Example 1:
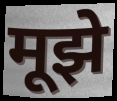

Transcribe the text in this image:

मूझे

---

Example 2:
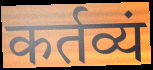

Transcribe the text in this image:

कर्तव्यं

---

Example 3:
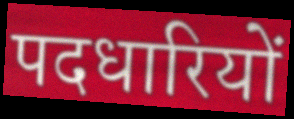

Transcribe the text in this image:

पदधारियों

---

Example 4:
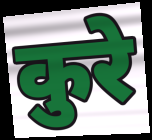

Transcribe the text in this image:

कुरे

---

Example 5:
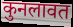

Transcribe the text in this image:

कुनलावत